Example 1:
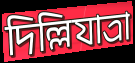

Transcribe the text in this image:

দিল্লিযাত্রা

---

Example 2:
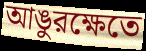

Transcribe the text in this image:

আঙুরক্ষেতে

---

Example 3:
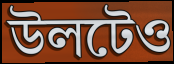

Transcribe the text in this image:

উলটেও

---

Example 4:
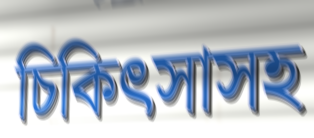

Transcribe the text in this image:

চিকিৎসাসহ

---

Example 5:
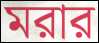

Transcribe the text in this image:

মরার